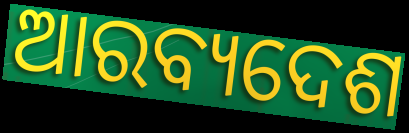
ଆରବ୍ୟଦେଶ